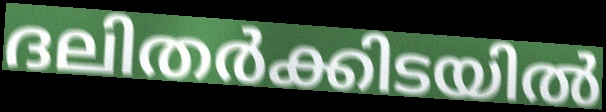
ദലിതർക്കിടയിൽ